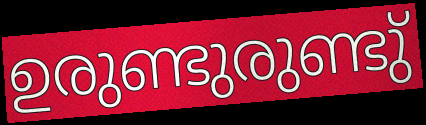
ഉരുണ്ടുരുണ്ടു്